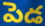
పెడ